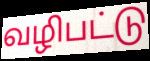
வழிபட்டு